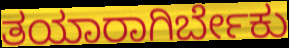
ತಯಾರಾಗಿರ್ಬೇಕು